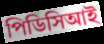
পিডিসিআই